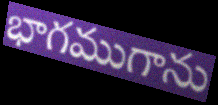
భాగముగాను